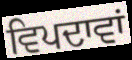
ਵਿਪਦਾਵਾਂ